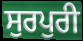
ਸੁਰਪੁਰੀ